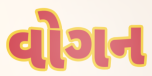
વોગન